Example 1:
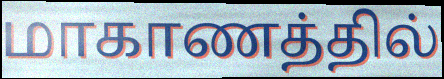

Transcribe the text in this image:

மாகாணத்தில்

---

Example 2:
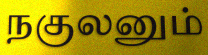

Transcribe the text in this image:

நகுலனும்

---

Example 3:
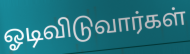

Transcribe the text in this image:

ஓடிவிடுவார்கள்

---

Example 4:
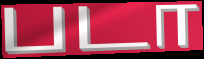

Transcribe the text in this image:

படா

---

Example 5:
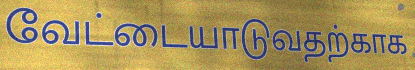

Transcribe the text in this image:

வேட்டையாடுவதற்காக